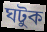
ঘটুক